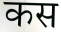
कस